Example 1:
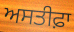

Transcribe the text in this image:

ਅਸਤੀਫ਼ਾ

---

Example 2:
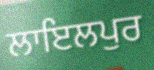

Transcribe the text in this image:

ਲਾਇਲਪੁਰ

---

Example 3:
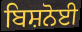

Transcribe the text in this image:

ਬਿਸ਼ਨੋਈ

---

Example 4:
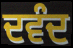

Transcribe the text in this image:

ਦਵੰਦ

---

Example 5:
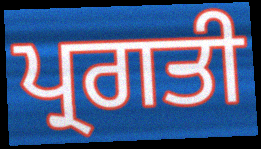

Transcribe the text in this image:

ਪ੍ਰਗਤੀ